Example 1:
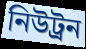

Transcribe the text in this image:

নিউট্ৰন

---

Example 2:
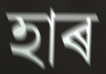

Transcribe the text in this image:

হাৰ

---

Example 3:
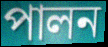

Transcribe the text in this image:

পালন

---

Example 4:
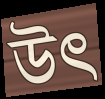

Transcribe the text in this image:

উৎ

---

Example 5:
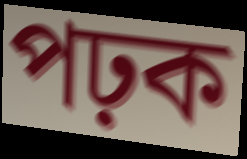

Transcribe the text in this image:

পঢ়ক